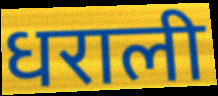
धराली